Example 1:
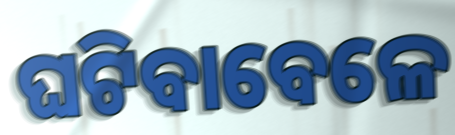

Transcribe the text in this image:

ଘଟିବାବେଳେ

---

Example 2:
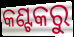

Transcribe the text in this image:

କଣ୍ଟକରୁ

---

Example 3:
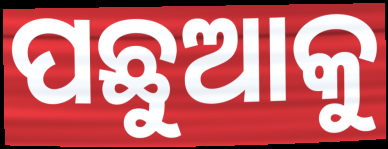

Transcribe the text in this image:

ପଛୁଆକୁ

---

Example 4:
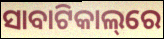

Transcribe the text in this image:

ସାବାଟିକାଲ୍‌ରେ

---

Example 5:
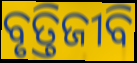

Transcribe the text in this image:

ବୃତ୍ତିଜୀବି